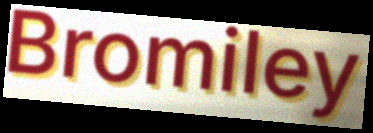
Bromiley